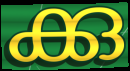
ക്കു